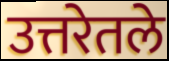
उत्तरेतले